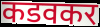
कडवकर